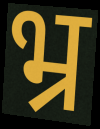
भ्र